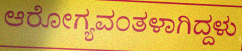
ಆರೋಗ್ಯವಂತಳಾಗಿದ್ದಳು